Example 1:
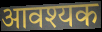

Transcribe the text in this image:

आवश्‍यक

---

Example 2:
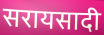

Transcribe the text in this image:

सरायसादी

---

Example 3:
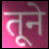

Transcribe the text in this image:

तूने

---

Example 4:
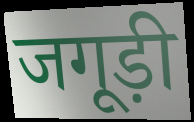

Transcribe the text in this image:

जगूड़ी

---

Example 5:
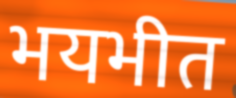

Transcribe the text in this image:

भयभीत